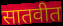
सातवीत